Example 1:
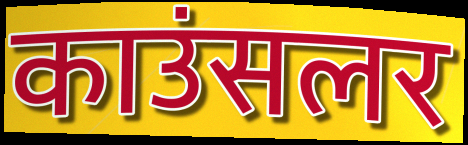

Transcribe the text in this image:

काउंसलर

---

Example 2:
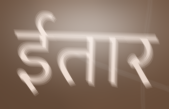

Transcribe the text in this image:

ईतार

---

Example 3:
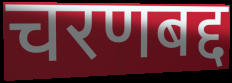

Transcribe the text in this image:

चरणबद्द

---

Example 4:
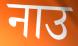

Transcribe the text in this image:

नाउ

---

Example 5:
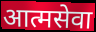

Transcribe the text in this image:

आत्मसेवा